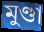
মুণ্ডা